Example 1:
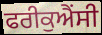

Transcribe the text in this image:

ਫਰੀਕੁਐਂਸੀ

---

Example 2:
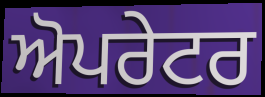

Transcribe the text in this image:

ਅੋਪਰੇਟਰ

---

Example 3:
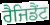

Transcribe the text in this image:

ਰੈਜਿਡੈਂਟ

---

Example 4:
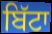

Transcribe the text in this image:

ਬਿੱਟਾ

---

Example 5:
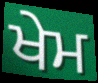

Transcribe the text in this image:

ਖੇਮ